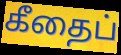
கீதைப்